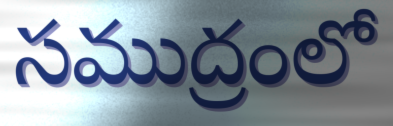
సముద్రంలో